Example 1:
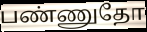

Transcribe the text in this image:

பண்ணுதோ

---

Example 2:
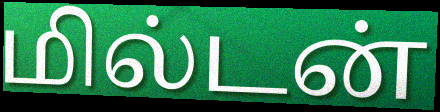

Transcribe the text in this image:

மில்டன்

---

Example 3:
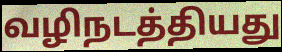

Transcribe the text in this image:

வழிநடத்தியது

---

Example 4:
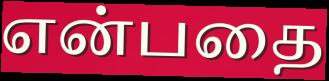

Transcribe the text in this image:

என்பதை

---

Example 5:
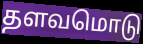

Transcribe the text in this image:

தளவமொடு